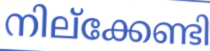
നില്ക്കേണ്ടി